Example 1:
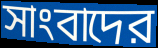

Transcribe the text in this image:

সাংবাদের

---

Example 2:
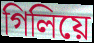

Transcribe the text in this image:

গিলিয়ে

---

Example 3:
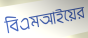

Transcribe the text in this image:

বিএমআইয়ের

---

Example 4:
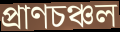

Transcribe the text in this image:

প্রাণচঞ্চল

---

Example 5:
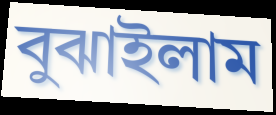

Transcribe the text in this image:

বুঝাইলাম